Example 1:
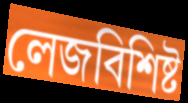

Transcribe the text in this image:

লেজবিশিষ্ট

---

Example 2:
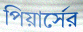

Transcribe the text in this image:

পিয়ার্সের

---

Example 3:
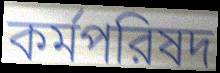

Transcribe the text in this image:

কর্মপরিষদ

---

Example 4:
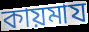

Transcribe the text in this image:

কায়মায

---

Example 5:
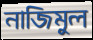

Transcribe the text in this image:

নাজিমুল